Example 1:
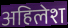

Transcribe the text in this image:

अहिलेश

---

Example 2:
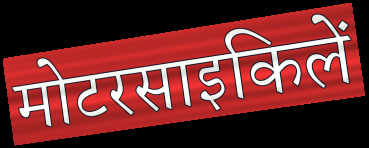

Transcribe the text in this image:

मोटरसाइकिलें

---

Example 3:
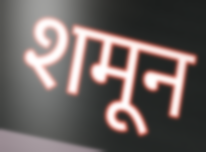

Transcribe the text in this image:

शमून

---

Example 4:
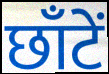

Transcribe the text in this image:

छाँटें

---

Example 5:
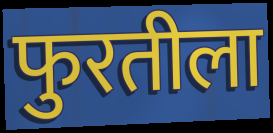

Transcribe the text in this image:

फुरतीला